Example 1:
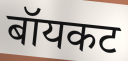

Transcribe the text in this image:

बॉयकट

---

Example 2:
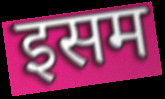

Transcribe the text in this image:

इसम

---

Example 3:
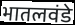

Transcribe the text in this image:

भातलवंडे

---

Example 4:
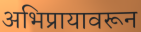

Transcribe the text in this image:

अभिप्रायावरून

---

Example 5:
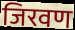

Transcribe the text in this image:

जिरवण